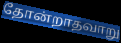
தோன்றாதவாறு